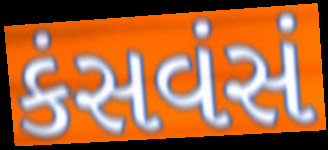
કંસવંસં